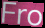
Fro